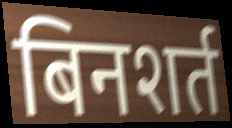
बिनशर्त